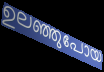
ഉലഞ്ഞുപോയ